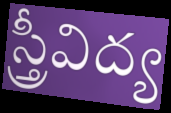
స్త్రీవిద్య